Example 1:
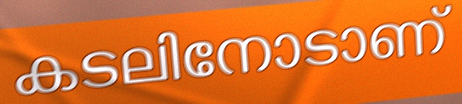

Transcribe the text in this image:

കടലിനോടാണ്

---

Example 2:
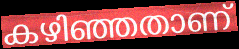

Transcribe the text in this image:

കഴിഞ്ഞതാണ്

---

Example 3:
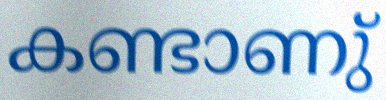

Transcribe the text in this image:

കണ്ടാണു്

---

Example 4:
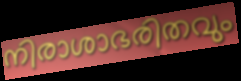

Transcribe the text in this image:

നിരാശാഭരിതവും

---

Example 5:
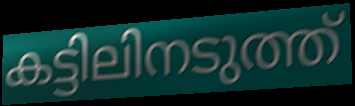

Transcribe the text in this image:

കട്ടിലിനടുത്ത്